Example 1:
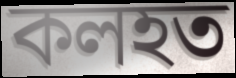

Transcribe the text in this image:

কলহত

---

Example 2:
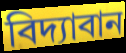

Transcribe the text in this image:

বিদ্যাবান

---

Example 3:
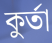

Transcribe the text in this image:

কুৰ্তা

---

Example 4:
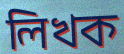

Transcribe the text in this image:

লিখক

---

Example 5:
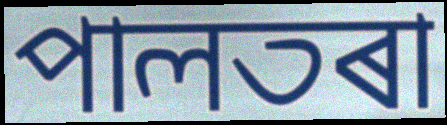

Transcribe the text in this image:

পালতৰা